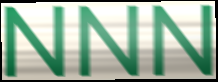
NNN